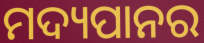
ମଦ୍ୟପାନର